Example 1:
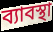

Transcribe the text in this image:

ব্যাবস্থা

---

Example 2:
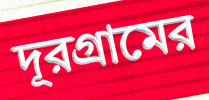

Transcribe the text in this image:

দূরগ্রামের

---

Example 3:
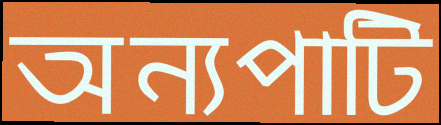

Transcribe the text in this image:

অন্যপাটি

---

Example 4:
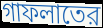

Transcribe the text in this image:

গাফলাতের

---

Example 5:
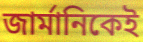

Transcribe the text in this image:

জার্মানিকেই